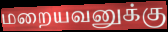
மறையவனுக்கு